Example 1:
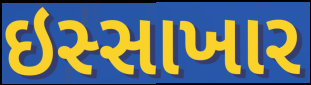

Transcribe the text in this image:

ઇસ્સાખાર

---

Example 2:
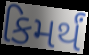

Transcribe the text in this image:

કિમર્થં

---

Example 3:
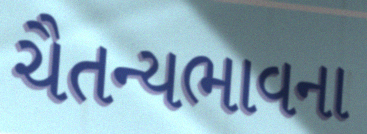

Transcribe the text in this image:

ચૈતન્યભાવના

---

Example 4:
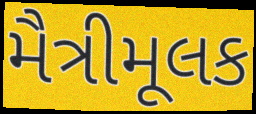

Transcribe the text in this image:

મૈત્રીમૂલક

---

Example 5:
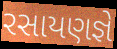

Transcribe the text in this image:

રસાયણજ્ઞે